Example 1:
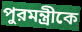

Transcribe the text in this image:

পুরমন্ত্রীকে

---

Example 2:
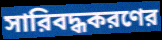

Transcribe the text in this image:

সারিবদ্ধকরণের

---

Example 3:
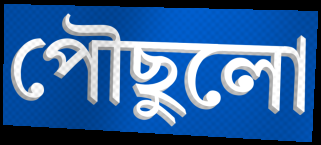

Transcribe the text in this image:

পৌছুলো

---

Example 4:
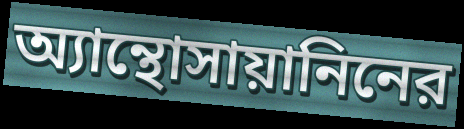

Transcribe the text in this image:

অ্যান্থোসায়ানিনের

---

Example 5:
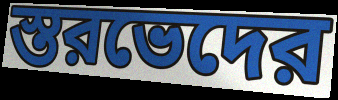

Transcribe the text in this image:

স্তরভেদের